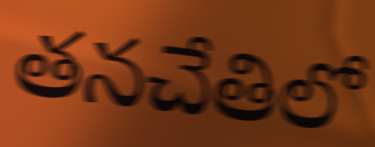
తనచేతిలో